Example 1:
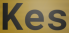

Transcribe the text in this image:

Kes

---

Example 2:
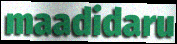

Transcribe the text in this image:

maadidaru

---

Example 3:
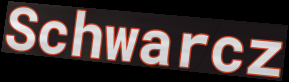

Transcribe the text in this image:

Schwarcz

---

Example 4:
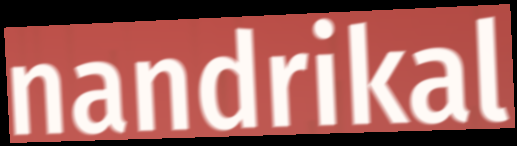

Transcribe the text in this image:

nandrikal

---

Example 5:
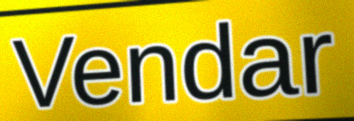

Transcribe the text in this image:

Vendar